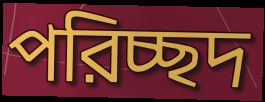
পরিচ্ছদ